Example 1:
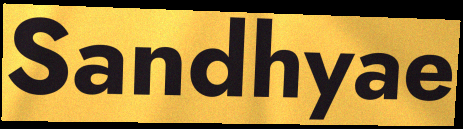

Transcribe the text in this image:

Sandhyae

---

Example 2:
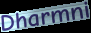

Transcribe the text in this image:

Dharmni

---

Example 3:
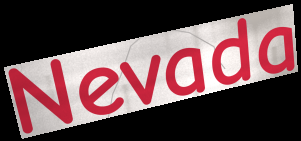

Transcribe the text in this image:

Nevada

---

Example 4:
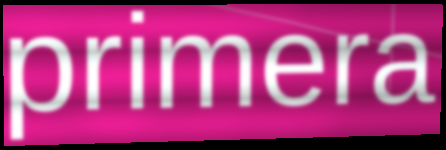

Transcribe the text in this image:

primera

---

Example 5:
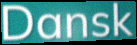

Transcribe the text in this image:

Dansk